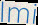
Imi